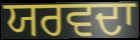
ਯਰਵਦਾ